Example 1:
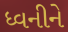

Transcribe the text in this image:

ધ્વનીને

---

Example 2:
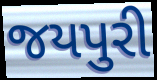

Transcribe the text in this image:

જયપુરી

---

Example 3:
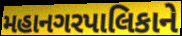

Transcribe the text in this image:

મહાનગરપાલિકાને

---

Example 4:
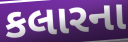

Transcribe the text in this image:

કલારના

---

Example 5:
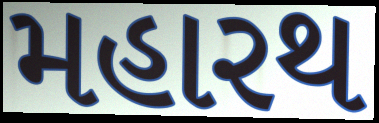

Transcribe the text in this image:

મહારથ